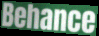
Behance